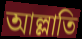
আল্লাতি